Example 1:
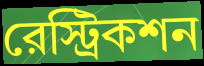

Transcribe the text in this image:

রেস্ট্রিকশন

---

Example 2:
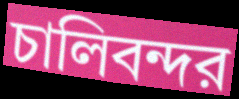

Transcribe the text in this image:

চালিবন্দর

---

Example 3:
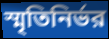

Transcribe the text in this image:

স্মৃতিনির্ভর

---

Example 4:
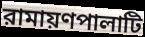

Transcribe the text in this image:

রামায়ণপালাটি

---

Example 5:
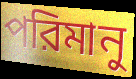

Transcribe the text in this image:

পরিমানু